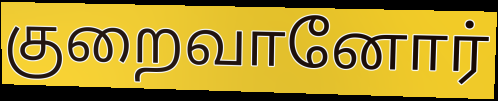
குறைவானோர்